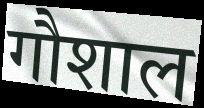
गौशाल